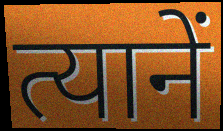
त्यानें